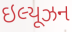
ઇલ્યૂઝન